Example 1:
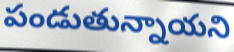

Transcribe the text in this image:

పండుతున్నాయని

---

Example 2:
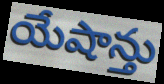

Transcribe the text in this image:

యేషాన్తు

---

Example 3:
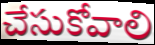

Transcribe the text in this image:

చేసుకోవాలి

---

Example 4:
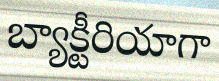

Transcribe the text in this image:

బ్యాక్టీరియాగా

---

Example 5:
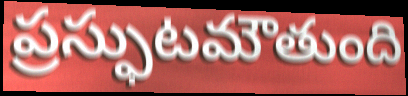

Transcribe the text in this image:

ప్రస్ఫుటమౌతుంది